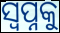
ସ୍ବପ୍ନକୁ